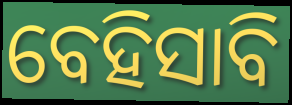
ବେହିସାବି